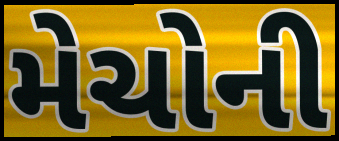
મેચોની